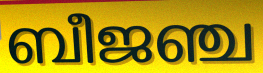
ബീജഞ്ച